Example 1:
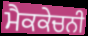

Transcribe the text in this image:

ਮੈਕਕੇਚਨੀ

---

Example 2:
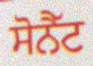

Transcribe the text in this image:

ਸੋਨੈੱਟ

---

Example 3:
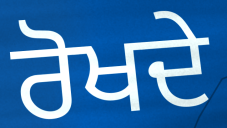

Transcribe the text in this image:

ਰੋਖਦੇ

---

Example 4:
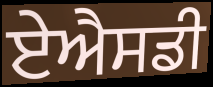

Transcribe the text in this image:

ਏਐਸਡੀ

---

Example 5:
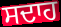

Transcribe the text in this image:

ਸਦਾਹ